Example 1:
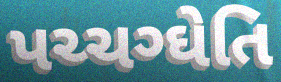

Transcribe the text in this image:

પચ્ચગ્ઘેતિ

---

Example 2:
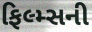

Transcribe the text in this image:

ફિલ્મ્સની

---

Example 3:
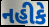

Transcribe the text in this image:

નહીકે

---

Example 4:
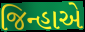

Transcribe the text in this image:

જિન્હાએ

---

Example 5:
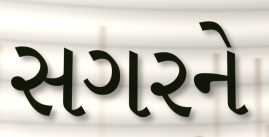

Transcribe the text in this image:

સગરને